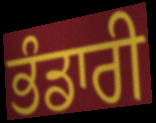
ਭੰਡਾਰੀ